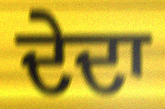
ਦੇਦਾ